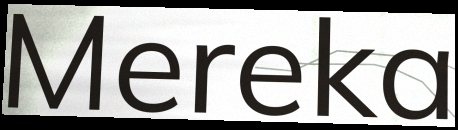
Mereka